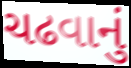
ચઢવાનું